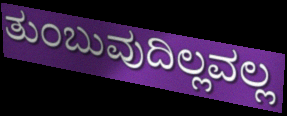
ತುಂಬುವುದಿಲ್ಲವಲ್ಲ